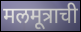
मलमूत्राची